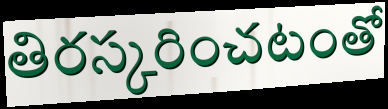
తిరస్కరించటంతో